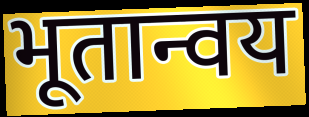
भूतान्वय